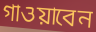
গাওয়াবেন